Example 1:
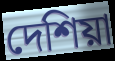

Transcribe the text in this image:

দেশিয়া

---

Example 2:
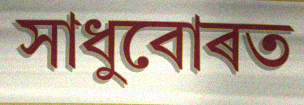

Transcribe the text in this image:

সাধুবোৰত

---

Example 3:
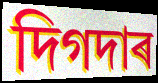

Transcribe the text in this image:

দিগদাৰ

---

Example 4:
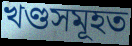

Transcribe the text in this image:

খণ্ডসমূহত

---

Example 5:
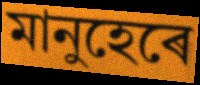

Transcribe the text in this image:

মানুহেৰে